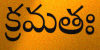
క్రమతః